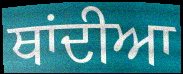
ਥਾਂਦੀਆ